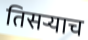
तिसर्‍याच